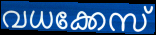
വധക്കേസ്